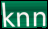
knn